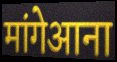
मांगेआना